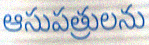
ఆసుపత్రులను